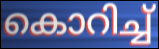
കൊറിച്ച്